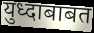
युध्दाबाबत